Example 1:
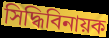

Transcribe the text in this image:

সিদ্ধিবিনায়ক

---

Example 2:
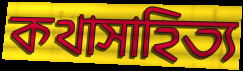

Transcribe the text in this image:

কথাসাহিত্য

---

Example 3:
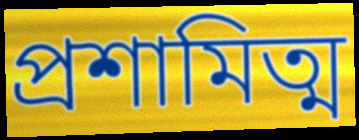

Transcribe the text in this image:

প্রশামিত্ম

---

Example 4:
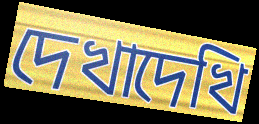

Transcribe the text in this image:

দেখাদেখি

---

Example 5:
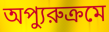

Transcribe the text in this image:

অপ্যুরুক্রমে